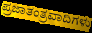
ಪ್ರಜಾತಂತ್ರವಾದಿಗಳು